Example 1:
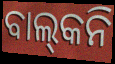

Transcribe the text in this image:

ବାଲ୍‍କନି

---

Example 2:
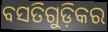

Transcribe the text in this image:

ବସତିଗୁଡ଼ିକର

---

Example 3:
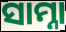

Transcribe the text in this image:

ସାମ୍ନା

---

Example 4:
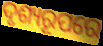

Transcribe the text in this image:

ଦୃଶ୍ୟରୂପରେ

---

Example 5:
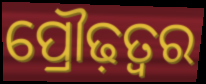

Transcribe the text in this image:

ପ୍ରୌଢ଼ତ୍ୱର